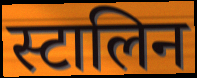
स्टालिन